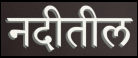
नदीतील